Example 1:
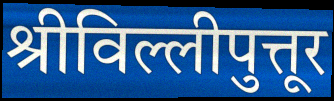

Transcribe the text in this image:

श्रीविल्लीपुत्तूर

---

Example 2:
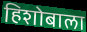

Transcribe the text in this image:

हिशोबाला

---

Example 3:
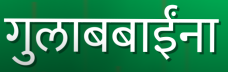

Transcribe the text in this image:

गुलाबबाईंना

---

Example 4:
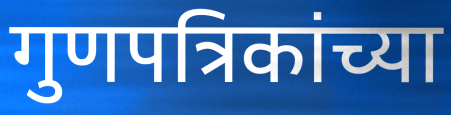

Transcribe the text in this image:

गुणपत्रिकांच्या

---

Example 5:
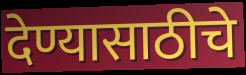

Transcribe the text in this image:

देण्यासाठीचे